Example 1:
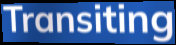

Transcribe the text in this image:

Transiting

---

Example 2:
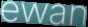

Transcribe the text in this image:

ewan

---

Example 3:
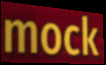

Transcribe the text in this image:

mock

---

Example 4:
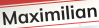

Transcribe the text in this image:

Maximilian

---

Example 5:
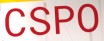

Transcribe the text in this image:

CSPO